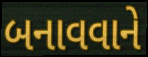
બનાવવાને